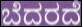
ಬೆದರದೆ